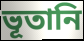
ভূতানি